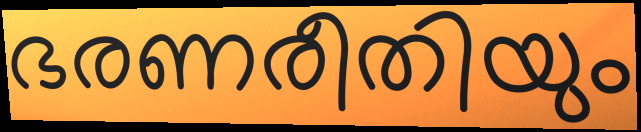
ഭരണരീതിയും